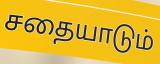
சதையாடும்